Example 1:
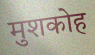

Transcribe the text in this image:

मुशकोह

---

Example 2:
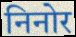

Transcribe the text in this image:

निनोर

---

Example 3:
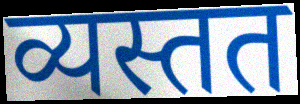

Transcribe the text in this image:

व्यस्तत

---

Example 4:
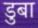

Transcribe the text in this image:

डुबा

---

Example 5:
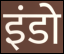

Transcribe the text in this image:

इंडो